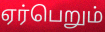
ஏர்பெறும்